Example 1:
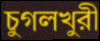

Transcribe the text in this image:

চুগলখুরী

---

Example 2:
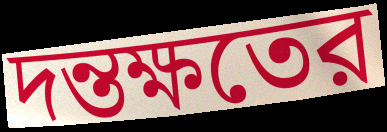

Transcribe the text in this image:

দন্তক্ষতের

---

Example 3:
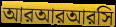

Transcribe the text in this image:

আরআরআরসি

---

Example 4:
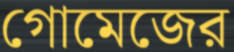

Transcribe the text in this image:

গোমেজের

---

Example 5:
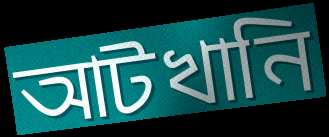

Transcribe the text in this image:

আটখানি